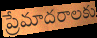
ప్రేమాదరాలకు